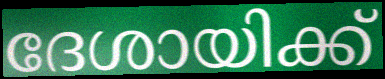
ദേശായിക്ക്